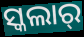
ସ୍କଲାର୍